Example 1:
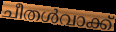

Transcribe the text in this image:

ചീതൾവാക്ക്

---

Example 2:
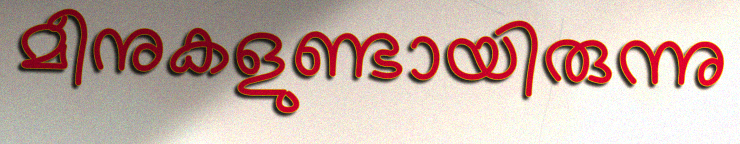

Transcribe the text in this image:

മീനുകളുണ്ടായിരുന്നു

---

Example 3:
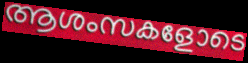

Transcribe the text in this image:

ആശംസകളോടെ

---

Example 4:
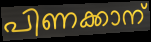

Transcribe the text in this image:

പിണക്കാന്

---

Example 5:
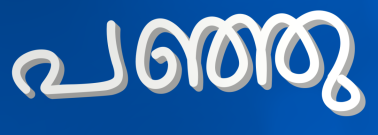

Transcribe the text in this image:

പഞ്ഞു